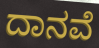
ದಾನವೆ